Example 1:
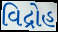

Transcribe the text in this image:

વિદ્રોહ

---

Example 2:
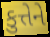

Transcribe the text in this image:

કુત્તેને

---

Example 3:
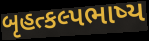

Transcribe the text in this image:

બૃહત્કલ્પભાષ્ય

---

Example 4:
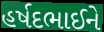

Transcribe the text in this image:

હર્ષદભાઈને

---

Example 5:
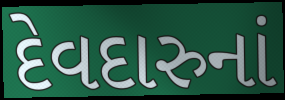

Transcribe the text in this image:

દેવદારુનાં